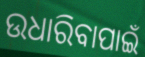
ଉଧାରିବାପାଇଁ